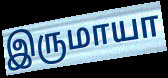
இருமாயா